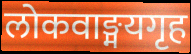
लोकवाङ्मयगृह